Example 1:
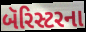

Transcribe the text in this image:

બૅરિસ્ટરના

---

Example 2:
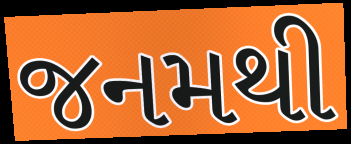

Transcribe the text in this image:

જનમથી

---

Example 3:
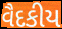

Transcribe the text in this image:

વૈદકીય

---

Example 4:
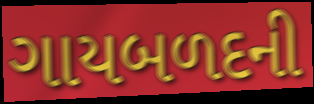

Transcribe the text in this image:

ગાયબળદની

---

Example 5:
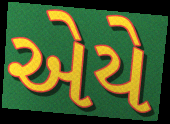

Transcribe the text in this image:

એયે